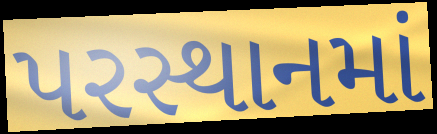
પરસ્થાનમાં